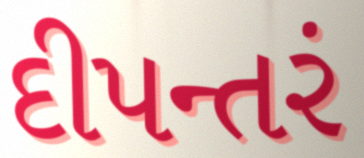
દીપન્તરં